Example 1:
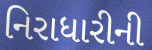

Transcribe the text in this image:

નિરાધારીની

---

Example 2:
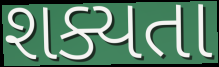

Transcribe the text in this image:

શક્યતા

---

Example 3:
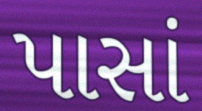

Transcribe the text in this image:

પાસાં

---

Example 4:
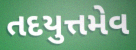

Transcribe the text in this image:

તદયુત્તમેવ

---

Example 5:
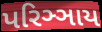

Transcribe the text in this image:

પરિઞ્ઞાય